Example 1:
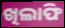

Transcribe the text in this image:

ଖିଲାଫି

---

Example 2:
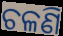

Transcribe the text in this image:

ଚଳଣି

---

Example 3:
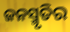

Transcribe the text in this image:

ଜନସ୍ମୃତିର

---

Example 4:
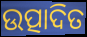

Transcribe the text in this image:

ଉତ୍ପାଦିତ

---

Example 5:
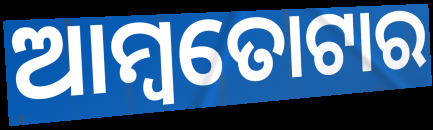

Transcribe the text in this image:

ଆମ୍ବତୋଟାର